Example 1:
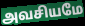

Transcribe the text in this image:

அவசியமே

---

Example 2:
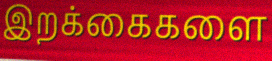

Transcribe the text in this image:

இறக்கைகளை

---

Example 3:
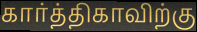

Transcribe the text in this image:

கார்த்திகாவிற்கு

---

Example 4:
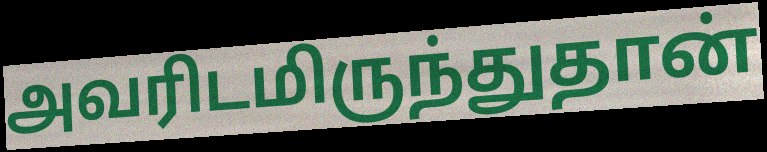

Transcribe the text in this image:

அவரிடமிருந்துதான்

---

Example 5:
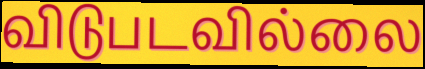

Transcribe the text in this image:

விடுபடவில்லை